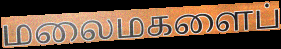
மலைமகளைப்